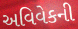
અવિવેકની